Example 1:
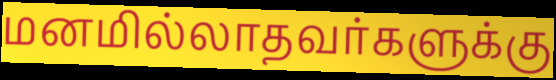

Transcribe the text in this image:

மனமில்லாதவர்களுக்கு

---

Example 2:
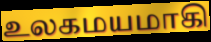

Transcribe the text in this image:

உலகமயமாகி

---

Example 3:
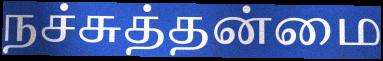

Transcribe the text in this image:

நச்சுத்தன்மை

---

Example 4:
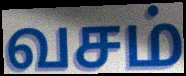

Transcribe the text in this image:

வசம்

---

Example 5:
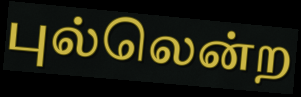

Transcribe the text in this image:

புல்லென்ற